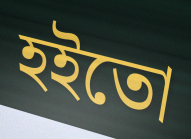
হইতো